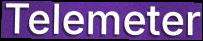
Telemeter